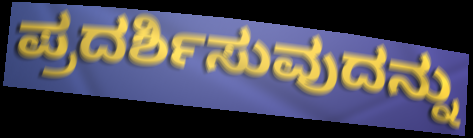
ಪ್ರದರ್ಶಿಸುವುದನ್ನು